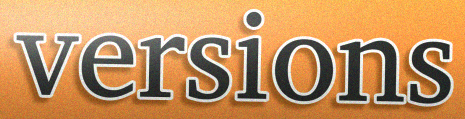
versions